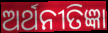
ଅର୍ଥନୀତିଜ୍ଞା